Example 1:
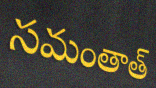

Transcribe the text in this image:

సమంతాత్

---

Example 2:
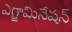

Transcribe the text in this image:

ఎగ్జామినేషన్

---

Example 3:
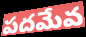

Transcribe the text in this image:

పదమేవ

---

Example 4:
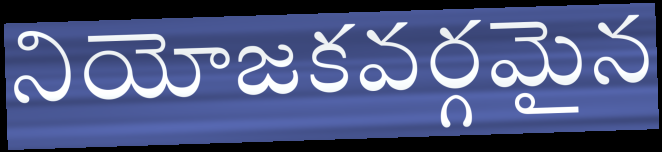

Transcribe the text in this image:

నియోజకవర్గమైన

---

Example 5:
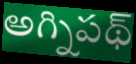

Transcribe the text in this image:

అగ్నిపథ్